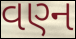
વણ્ન